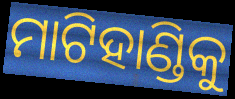
ମାଟିହାଣ୍ଡିକୁ